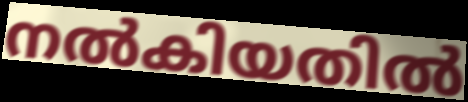
നൽകിയതിൽ